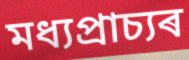
মধ্যপ্ৰাচ্যৰ